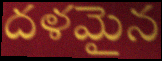
దళమైన